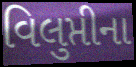
વિલુપ્તીના